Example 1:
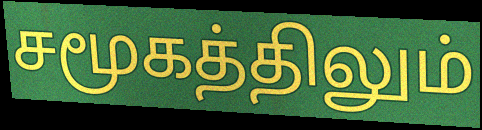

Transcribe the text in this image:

சமூகத்திலும்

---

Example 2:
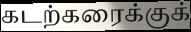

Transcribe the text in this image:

கடற்கரைக்குக்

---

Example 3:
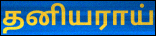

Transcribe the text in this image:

தனியராய்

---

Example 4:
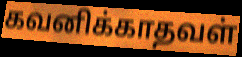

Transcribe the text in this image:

கவனிக்காதவள்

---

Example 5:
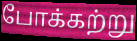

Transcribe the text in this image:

போக்கற்று